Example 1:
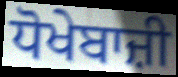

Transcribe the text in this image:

ਧੋਖੇਬਾਜ਼ੀ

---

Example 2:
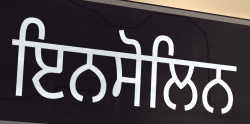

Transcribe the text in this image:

ਇਨਸੋਲਿਨ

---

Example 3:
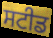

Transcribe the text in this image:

ਸਟੀਡ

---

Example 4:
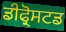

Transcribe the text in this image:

ਡੀਫ੍ਰੋਸਟਡ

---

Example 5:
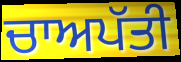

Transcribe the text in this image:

ਚਾਅਪੱਤੀ